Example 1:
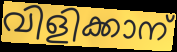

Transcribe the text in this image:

വിളിക്കാന്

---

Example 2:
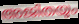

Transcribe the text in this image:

അജിതയും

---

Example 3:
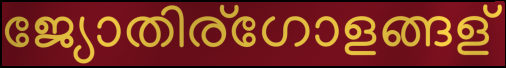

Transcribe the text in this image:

ജ്യോതിര്ഗോളങ്ങള്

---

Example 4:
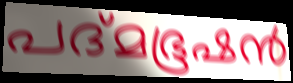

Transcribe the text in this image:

പദ്മഭൂഷൻ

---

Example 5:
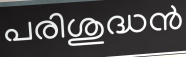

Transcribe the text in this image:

പരിശുദ്ധൻ